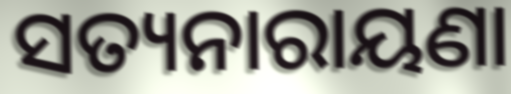
ସତ୍ୟନାରାୟଣା